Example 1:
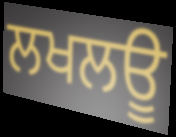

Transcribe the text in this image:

ਲਖਲਊ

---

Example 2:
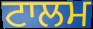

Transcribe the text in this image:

ਟਾਲਮ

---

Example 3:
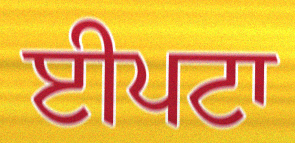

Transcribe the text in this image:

ਈਪਟਾ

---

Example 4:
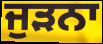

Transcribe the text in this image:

ਜੁੜਨਾ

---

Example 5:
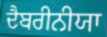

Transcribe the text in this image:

ਦੈਬਰੀਨੀਯਾ